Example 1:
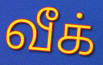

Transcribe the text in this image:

வீக்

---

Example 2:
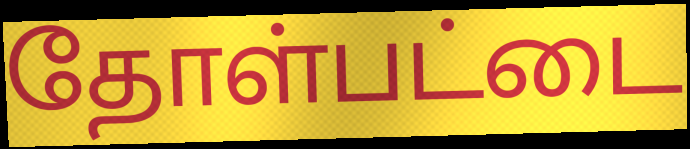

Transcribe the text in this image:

தோள்பட்டை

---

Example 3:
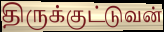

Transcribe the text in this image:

திருக்குட்டுவன்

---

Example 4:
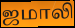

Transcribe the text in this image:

ஜமாலி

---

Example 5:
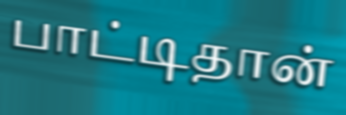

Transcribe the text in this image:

பாட்டிதான்